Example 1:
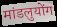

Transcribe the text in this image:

मांडलुयोंग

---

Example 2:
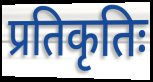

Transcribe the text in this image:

प्रतिकृतिः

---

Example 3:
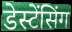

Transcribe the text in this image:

डेस्टेंसिंग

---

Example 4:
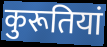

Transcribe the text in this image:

कुरूतियां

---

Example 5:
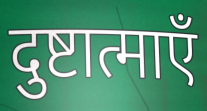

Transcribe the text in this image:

दुष्टात्माएँ